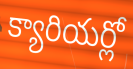
క్యారియర్లో